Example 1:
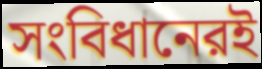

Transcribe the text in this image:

সংবিধানেরই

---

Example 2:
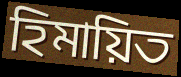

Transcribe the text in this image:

হিমায়িত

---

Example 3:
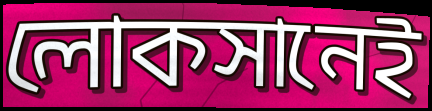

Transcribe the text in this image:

লোকসানেই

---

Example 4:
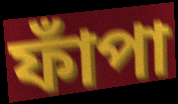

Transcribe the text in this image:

ফাঁপা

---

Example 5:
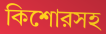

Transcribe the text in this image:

কিশোরসহ